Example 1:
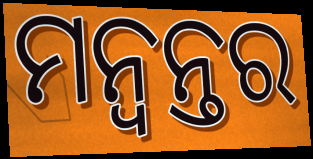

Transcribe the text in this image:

ମନ୍ୱନ୍ତର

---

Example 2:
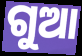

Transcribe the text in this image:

ଗୁଆ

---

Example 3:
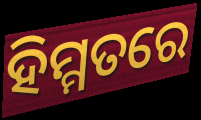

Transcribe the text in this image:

ହିମ୍ମତରେ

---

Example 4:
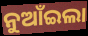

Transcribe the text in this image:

ନୁଆଁଇଲା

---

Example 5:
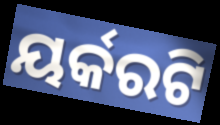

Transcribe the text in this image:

ୟର୍କରଟି